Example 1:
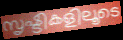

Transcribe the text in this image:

സൃഷ്ടികളിലൂടെ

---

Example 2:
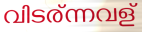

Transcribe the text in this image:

വിടര്ന്നവള്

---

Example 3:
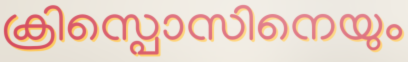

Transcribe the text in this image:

ക്രിസ്പൊസിനെയും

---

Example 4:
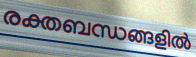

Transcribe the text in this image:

രക്തബന്ധങ്ങളിൽ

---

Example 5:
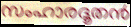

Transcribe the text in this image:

സംഹാരദൂതൻ